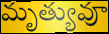
మృత్యువూ